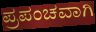
ಪ್ರಪಂಚವಾಗಿ